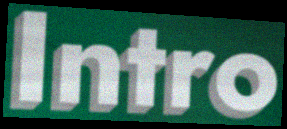
Intro